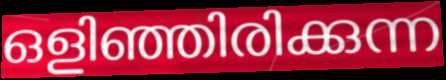
ഒളിഞ്ഞിരിക്കുന്ന